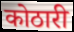
कोठारी